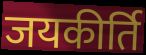
जयकीर्ति